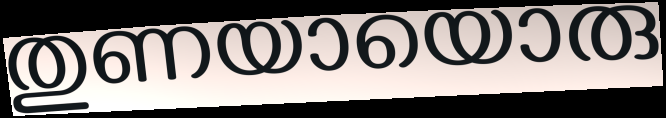
തുണയായൊരു